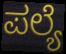
ಪಲ್ಯೆ